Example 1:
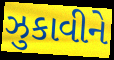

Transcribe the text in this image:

ઝુકાવીને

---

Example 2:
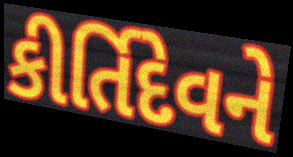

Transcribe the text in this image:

કીર્તિદેવને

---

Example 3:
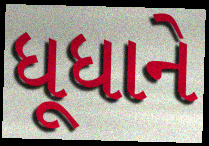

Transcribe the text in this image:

ધૂધાને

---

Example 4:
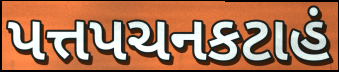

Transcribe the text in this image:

પત્તપચનકટાહં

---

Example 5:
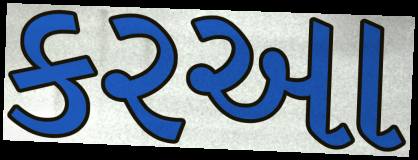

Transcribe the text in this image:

કરઆ